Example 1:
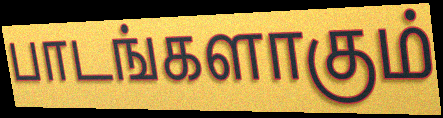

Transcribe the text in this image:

பாடங்களாகும்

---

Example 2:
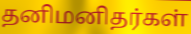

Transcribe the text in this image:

தனிமனிதர்கள்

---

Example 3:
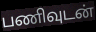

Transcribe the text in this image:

பணிவுடன்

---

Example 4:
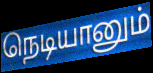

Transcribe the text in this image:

நெடியானும்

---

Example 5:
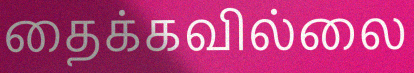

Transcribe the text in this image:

தைக்கவில்லை